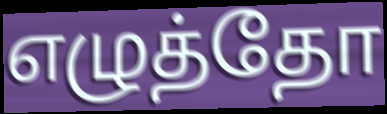
எழுத்தோ